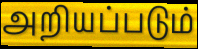
அறியப்படும்